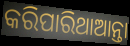
କରିପାରିଥାଆନ୍ତା